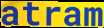
atram